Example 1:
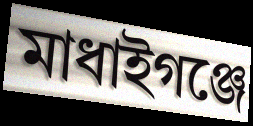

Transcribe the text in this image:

মাধাইগঞ্জে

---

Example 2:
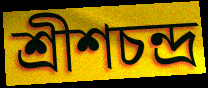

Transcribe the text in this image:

শ্রীশচন্দ্র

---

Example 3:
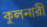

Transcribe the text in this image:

কুলনারী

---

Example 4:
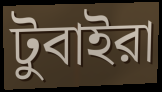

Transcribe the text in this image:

টুবাইরা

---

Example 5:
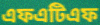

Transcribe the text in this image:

এফএটিএফ